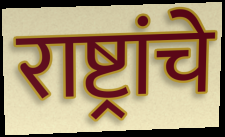
राष्ट्रांचे